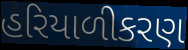
હરિયાળીકરણ